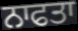
ਨਾਫਤਾ